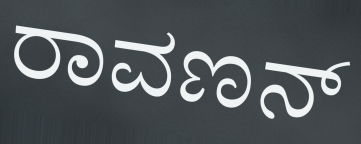
ರಾವಣನ್